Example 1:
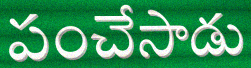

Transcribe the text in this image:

పంచేసాడు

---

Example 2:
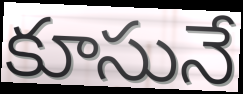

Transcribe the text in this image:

కూసునే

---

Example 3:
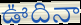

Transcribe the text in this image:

ఊదినా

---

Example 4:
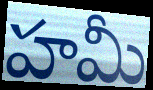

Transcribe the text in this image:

హమీ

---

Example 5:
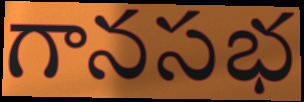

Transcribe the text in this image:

గానసభ